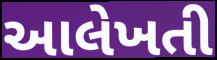
આલેખતી